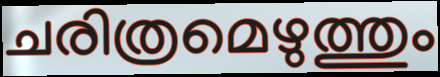
ചരിത്രമെഴുത്തും